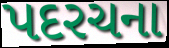
પદરચના